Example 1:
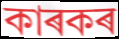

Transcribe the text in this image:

কাৰকৰ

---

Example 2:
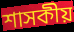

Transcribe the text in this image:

শাসকীয়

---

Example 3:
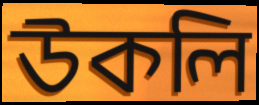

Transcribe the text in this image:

উকলি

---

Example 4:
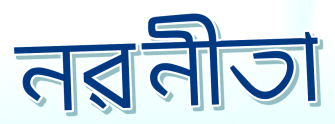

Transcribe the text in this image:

নৱনীতা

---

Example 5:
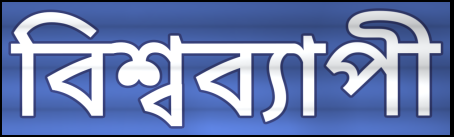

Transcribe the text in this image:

বিশ্বব্যাপী